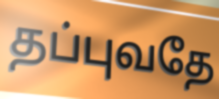
தப்புவதே